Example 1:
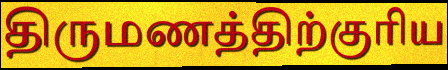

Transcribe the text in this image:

திருமணத்திற்குரிய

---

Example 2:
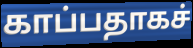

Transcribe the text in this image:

காப்பதாகச்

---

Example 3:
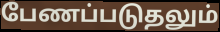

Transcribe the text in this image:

பேணப்படுதலும்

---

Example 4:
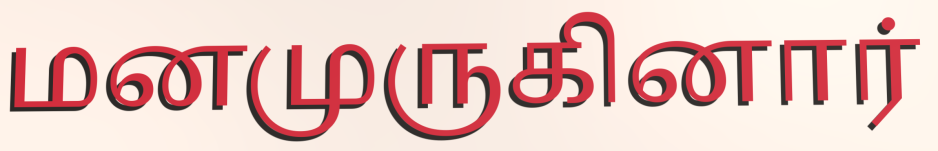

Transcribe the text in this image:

மனமுருகினார்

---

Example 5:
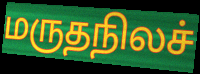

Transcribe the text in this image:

மருதநிலச்